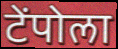
टेंपोला